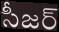
సీజర్